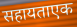
सहायताएक